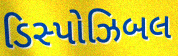
ડિસ્પોઝિબલ